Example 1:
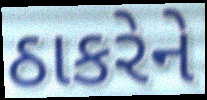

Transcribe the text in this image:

ઠાકરેને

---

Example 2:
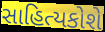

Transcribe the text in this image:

સાહિત્યકોશે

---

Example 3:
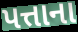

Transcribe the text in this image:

પત્તાના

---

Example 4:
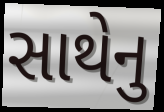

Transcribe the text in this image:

સાથેનુ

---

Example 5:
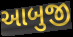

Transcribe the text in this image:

આબુજી